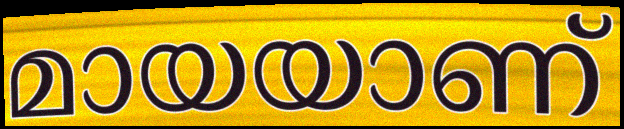
മായയാണ്